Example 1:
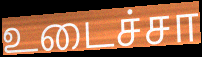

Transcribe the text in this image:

உடைச்சா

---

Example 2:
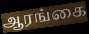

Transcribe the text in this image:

ஆரங்கை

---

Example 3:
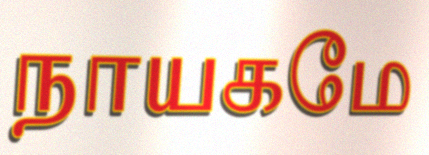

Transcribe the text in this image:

நாயகமே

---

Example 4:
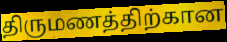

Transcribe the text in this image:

திருமணத்திற்கான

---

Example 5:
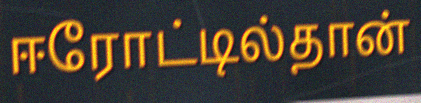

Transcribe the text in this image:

ஈரோட்டில்தான்